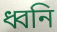
ধ্বনি